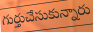
గుర్తుచేసుకున్నారు